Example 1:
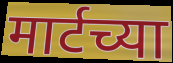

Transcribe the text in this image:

मार्टच्या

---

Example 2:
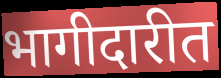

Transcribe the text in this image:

भागीदारीत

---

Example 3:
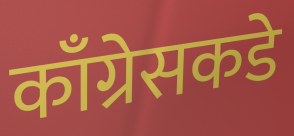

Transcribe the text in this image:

काँग्रेसकडे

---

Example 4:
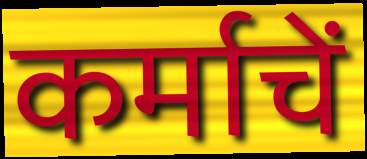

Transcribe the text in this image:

कर्माचें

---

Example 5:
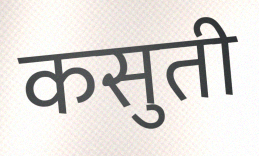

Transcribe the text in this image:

कसुती